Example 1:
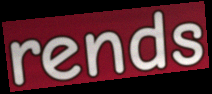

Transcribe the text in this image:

rends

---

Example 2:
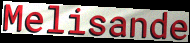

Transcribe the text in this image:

Melisande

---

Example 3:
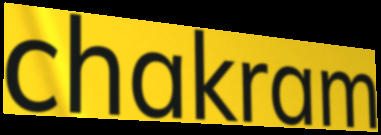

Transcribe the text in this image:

chakram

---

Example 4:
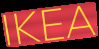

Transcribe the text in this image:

IKEA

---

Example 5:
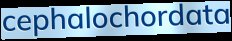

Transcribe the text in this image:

cephalochordata